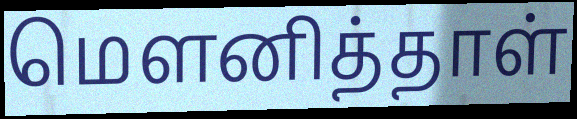
மௌனித்தாள்